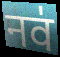
नव॑